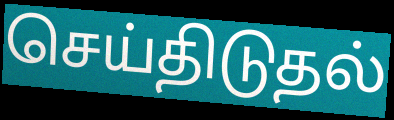
செய்திடுதல்